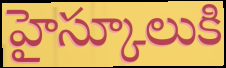
హైస్కూలుకి